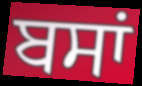
ਬਸਾਂ